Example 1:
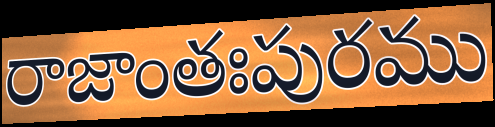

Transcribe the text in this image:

రాజాంతఃపురము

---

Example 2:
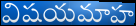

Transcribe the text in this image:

విషయమాహ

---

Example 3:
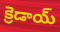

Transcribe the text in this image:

క్రెడాయ్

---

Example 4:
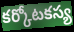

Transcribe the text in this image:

కర్కోటకస్య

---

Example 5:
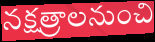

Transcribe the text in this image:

నక్షత్రాలనుంచి